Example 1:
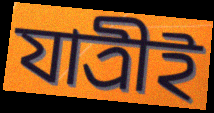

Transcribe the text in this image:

যাত্রীই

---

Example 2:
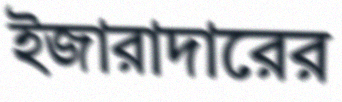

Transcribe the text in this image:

ইজারাদারের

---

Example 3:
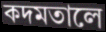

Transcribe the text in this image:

কদমতালে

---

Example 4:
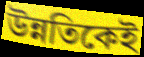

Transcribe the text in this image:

উন্নতিকেই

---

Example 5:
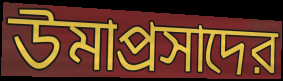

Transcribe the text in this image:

উমাপ্রসাদের